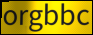
orgbbc